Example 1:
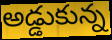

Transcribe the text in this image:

అడ్డుకున్న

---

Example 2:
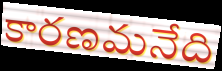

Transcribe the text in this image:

కారణమనేది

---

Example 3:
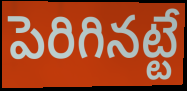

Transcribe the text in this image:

పెరిగినట్టే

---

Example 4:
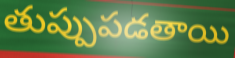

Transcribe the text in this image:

తుప్పుపడతాయి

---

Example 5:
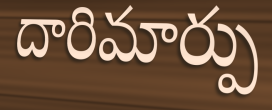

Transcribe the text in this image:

దారిమార్పు